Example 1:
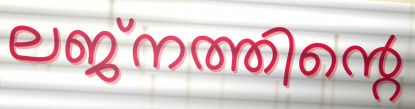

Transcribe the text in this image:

ലജ്നത്തിന്റെ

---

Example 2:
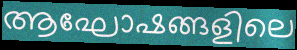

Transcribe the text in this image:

ആഘോഷങ്ങളിലെ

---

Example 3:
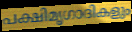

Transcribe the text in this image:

പക്ഷിമൃഗാദികളും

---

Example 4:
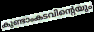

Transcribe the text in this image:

കുണ്ടാംകടവിന്റെയും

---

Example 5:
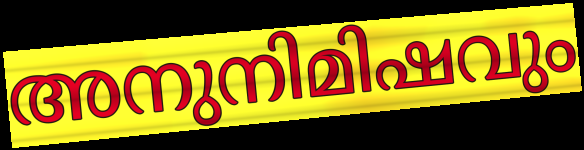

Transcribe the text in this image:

അനുനിമിഷവും